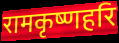
रामकृष्णहरि